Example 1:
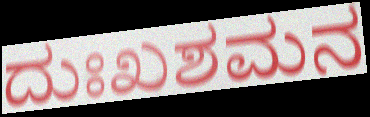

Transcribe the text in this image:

ದುಃಖಶಮನ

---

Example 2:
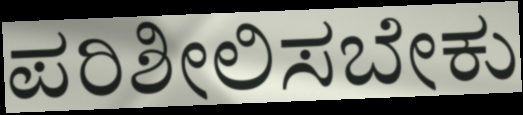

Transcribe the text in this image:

ಪರಿಶೀಲಿಸಬೇಕು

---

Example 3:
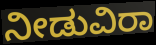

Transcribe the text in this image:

ನೀಡುವಿರಾ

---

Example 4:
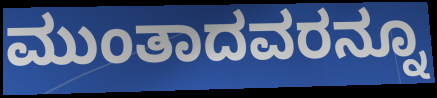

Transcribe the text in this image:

ಮುಂತಾದವರನ್ನೂ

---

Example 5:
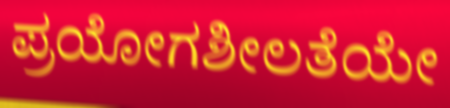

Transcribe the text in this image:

ಪ್ರಯೋಗಶೀಲತೆಯೇ